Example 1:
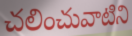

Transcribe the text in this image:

చలించువాటిని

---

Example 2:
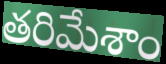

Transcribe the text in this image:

తరిమేశాం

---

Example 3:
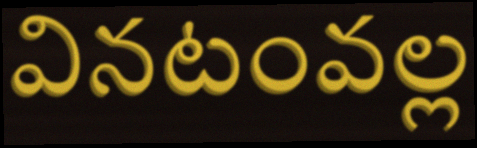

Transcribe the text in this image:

వినటంవల్ల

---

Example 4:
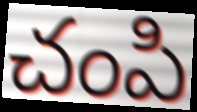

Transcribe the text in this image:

చంపి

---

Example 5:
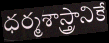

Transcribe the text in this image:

ధర్మశాస్త్రానికే